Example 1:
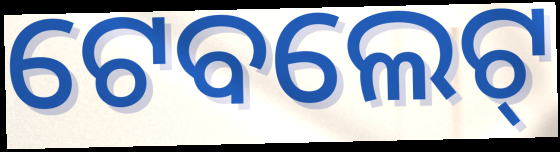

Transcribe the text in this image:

ଟେବଲେଟ୍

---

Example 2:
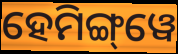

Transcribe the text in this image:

ହେମିଙ୍ଗ୍‌ୱେ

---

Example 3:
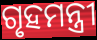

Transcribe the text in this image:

ଗୃହମନ୍ତ୍ରୀ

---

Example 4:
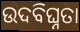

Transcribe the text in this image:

ଉଦବିଘ୍ନତା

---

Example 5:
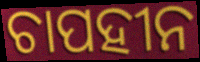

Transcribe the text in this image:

ଚାପହୀନ